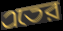
এতের